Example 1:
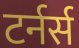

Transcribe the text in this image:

टर्नर्स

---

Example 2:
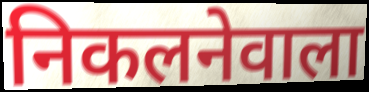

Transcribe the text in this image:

निकलनेवाला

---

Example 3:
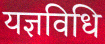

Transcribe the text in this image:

यज्ञविधि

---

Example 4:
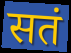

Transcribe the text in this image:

सतं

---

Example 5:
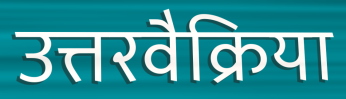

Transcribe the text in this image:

उत्तरवैक्रिया